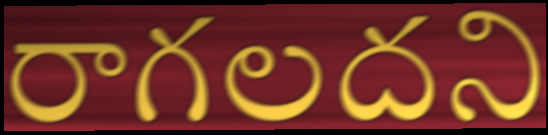
రాగలదని